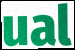
ual